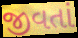
જીવતાં